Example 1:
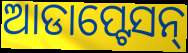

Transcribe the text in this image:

ଆଡାପ୍ଟେସନ୍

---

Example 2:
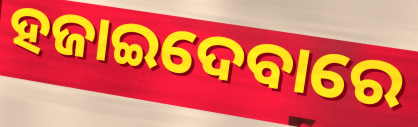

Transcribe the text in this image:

ହଜାଇଦେବାରେ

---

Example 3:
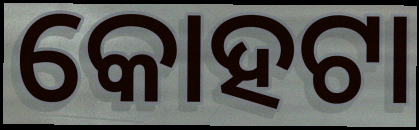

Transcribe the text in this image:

କୋହଟା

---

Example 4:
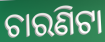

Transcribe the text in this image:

ଚାରଣିଟା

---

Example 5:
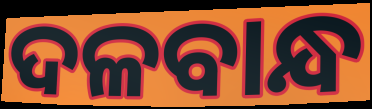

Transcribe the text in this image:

ଦଳବାନ୍ଧ